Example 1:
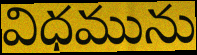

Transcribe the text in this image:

విధమును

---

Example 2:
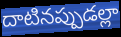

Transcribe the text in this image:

దాటినప్పుడల్లా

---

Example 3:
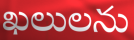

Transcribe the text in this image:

ఖలులను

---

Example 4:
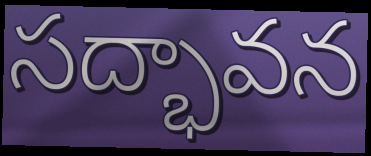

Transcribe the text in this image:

సద్భావన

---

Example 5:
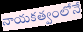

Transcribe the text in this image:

నాయకత్వంలోనే